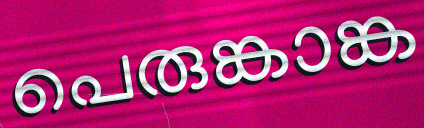
പെരുങ്കാങ്ക